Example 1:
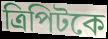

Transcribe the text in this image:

ত্রিপিটকে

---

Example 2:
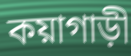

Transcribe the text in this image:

কয়াগাড়ী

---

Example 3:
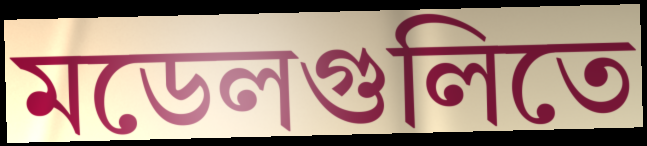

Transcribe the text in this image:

মডেলগুলিতে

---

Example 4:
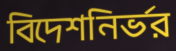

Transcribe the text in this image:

বিদেশনির্ভর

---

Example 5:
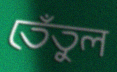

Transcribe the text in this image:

তেঁতুল